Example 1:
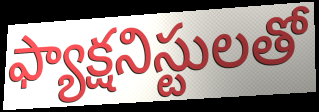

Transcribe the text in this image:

ఫ్యాక్షనిస్టులతో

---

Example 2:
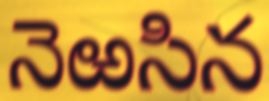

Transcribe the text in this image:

నెఱసిన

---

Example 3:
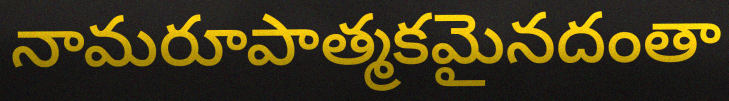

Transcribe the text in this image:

నామరూపాత్మకమైనదంతా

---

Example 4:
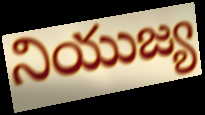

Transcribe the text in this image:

నియుజ్య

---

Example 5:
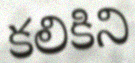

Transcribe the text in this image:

కలికిని